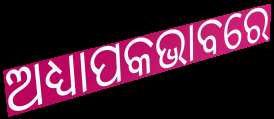
ଅଧ୍ୟାପକଭାବରେ